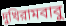
দুখিরামবাবু